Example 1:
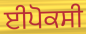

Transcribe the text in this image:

ਈਪੋਕਸੀ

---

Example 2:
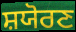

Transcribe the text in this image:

ਸ਼ਯੋਰਣ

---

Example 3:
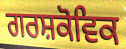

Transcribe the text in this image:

ਗਰਸ਼ਕੋਵਿਕ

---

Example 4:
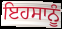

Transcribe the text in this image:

ਇਹਸਾਨੂੰ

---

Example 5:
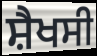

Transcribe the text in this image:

ਸ਼ੈਖਸੀ